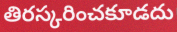
తిరస్కరించకూడదు